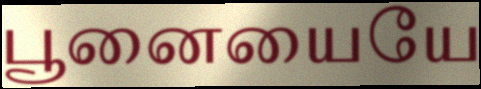
பூனையையே